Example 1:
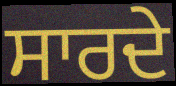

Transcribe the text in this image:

ਸਾਰਦੇ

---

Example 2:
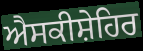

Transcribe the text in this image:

ਐਸਕੀਸ਼ੇਹਿਰ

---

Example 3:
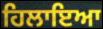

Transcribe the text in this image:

ਹਿਲਾਇਆ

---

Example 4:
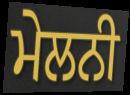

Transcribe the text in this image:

ਮੇਲਨੀ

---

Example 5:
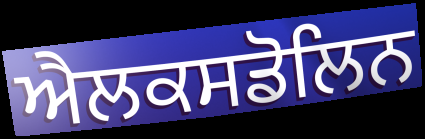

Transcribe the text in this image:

ਐਲਕਸਡੋਲਿਨ